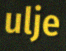
ulje